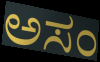
ಅಸಂ